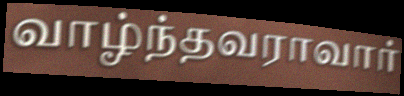
வாழ்ந்தவராவார்